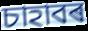
চাহাবৰ